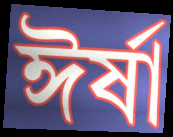
ঈৰ্ষা